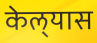
केल्यास